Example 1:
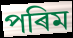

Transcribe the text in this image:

পৰিম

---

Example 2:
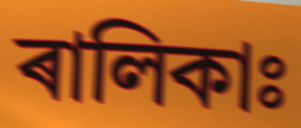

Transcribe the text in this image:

ৰালিকাঃ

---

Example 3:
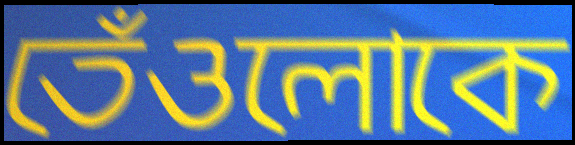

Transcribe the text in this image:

তেঁওলোকে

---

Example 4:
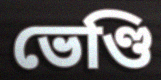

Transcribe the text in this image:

ভেণ্ডি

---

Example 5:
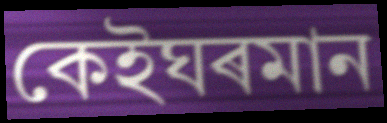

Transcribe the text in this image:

কেইঘৰমান